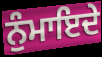
ਨੁੰਮਾਇਦੇ